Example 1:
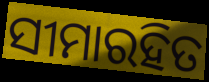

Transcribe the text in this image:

ସୀମାରହିତ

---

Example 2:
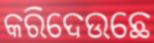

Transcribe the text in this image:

କରିଦେଉଛେ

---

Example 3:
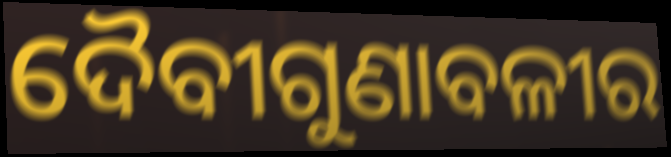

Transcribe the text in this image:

ଦୈବୀଗୁଣାବଳୀର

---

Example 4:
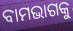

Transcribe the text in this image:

ବାମଭାଗକୁ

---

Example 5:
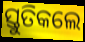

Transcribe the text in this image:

ସ୍ତୁତିକଲେ